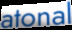
atonal